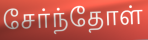
சேர்ந்தோள்